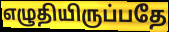
எழுதியிருப்பதே